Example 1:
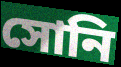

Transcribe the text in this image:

সোনি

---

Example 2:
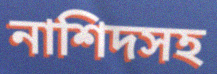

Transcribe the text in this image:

নাশিদসহ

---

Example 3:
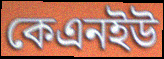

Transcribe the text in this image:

কেএনইউ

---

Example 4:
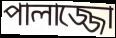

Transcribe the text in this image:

পালাজ্জো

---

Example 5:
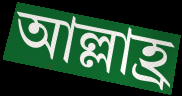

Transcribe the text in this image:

আল্লাহ্র